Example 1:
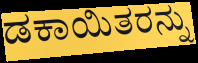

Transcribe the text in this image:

ಡಕಾಯಿತರನ್ನು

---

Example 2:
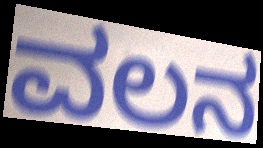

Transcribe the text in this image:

ವಲನ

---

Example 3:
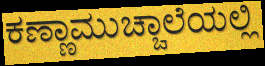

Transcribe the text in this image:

ಕಣ್ಣಾಮುಚ್ಚಾಲೆಯಲ್ಲಿ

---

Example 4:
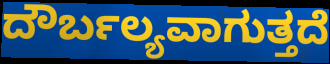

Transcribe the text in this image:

ದೌರ್ಬಲ್ಯವಾಗುತ್ತದೆ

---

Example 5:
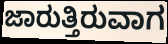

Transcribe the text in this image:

ಜಾರುತ್ತಿರುವಾಗ